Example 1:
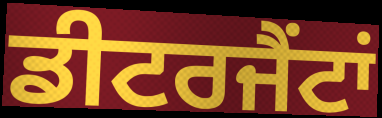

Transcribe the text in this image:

ਡੀਟਰਜੈਂਟਾਂ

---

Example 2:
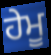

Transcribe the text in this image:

ਹੇਮੂ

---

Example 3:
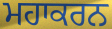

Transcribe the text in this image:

ਮਹਾਕਰਨ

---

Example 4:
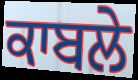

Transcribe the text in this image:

ਕਾਬਲੇ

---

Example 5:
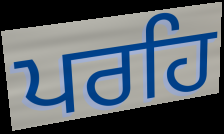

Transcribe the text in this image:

ਪਰਹਿ